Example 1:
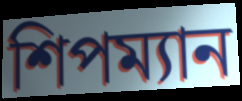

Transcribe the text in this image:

শিপম্যান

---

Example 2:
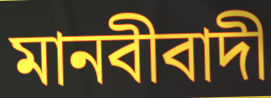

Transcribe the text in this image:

মানবীবাদী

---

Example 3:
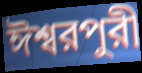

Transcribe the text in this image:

ঈশ্বরপুরী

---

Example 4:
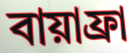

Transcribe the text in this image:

বায়াফ্রা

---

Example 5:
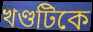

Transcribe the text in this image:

খণ্ডটিকে